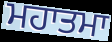
ਮਹਾਤਮਾ